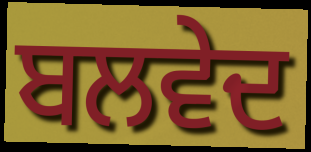
ਬਲਵੇਦ